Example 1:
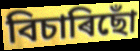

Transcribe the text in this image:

বিচাৰিছোঁ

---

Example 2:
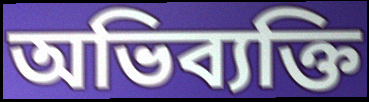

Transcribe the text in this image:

অভিব্যক্তি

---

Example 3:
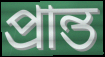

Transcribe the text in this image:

প্ৰান্ত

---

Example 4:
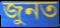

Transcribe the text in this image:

জুনত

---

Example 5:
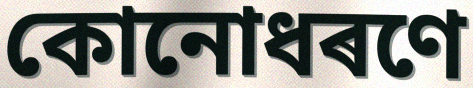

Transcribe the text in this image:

কোনোধৰণে